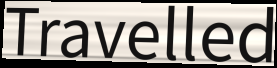
Travelled